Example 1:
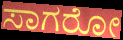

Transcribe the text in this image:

ಸಾಗರೋ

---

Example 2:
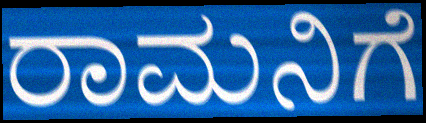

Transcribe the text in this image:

ರಾಮನಿಗೆ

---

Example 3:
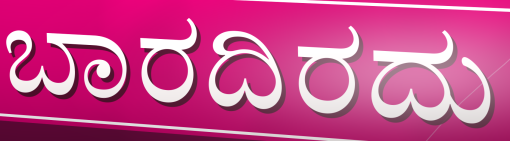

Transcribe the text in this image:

ಬಾರದಿರದು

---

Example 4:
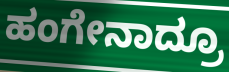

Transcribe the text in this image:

ಹಂಗೇನಾದ್ರೂ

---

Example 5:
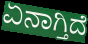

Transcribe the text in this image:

ಏನಾಗ್ತಿದೆ